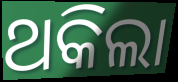
ଥକିଲା